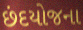
છંદયોજના